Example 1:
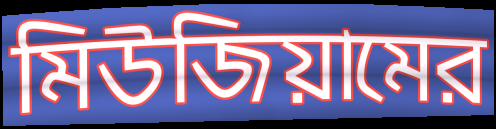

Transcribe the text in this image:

মিউজিয়ামের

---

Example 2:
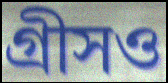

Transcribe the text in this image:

গ্রীসও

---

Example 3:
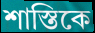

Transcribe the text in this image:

শাস্তিকে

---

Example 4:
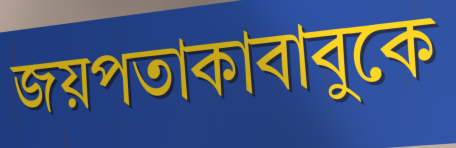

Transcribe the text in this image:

জয়পতাকাবাবুকে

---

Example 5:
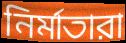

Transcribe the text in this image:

নির্মাতারা